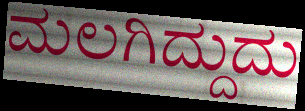
ಮಲಗಿದ್ದುದು